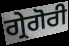
ਗ੍ਰੇਗੋਰੀ